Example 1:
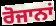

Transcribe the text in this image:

ਰੋਜਾਨਾਂ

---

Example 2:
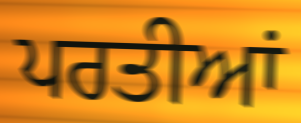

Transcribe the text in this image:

ਪਰਤੀਆਂ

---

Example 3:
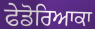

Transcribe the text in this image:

ਫੇਡੋਰਿਆਕਾ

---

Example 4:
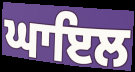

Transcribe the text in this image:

ਘਾਇਲ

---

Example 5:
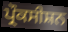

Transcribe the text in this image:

ਪ੍ਰੌਕਸੀਸ਼ਨ